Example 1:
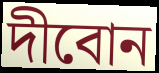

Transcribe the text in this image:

দীবোন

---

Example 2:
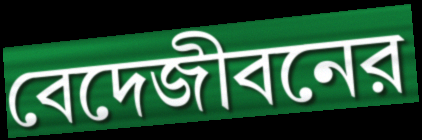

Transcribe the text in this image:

বেদেজীবনের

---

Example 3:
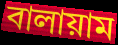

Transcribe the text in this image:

বালায়াম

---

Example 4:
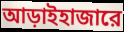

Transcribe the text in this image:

আড়াইহাজারে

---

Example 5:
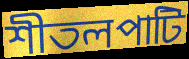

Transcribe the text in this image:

শীতলপাটি